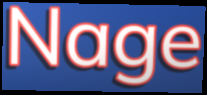
Nage